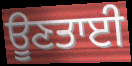
ਊਣਤਾਈ